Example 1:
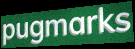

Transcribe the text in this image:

pugmarks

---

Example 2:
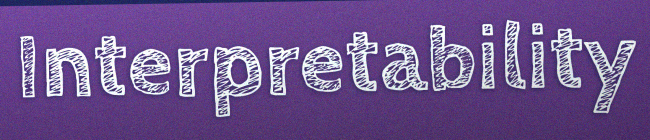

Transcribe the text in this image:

Interpretability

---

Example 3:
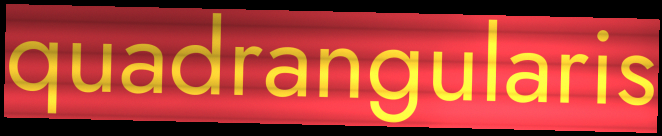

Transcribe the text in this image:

quadrangularis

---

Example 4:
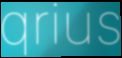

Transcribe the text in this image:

qrius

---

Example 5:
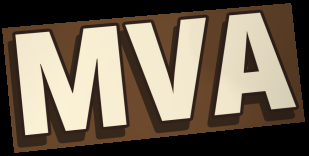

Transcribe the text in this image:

MVA